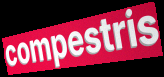
compestris